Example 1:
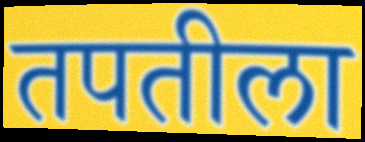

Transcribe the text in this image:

तपतीला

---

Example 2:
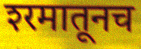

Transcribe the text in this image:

श्रमातूनच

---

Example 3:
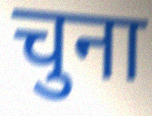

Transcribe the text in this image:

चुना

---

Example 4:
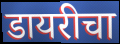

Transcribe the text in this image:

डायरीचा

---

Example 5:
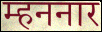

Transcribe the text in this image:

म्हननार